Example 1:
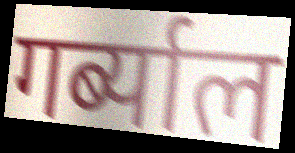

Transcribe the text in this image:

गर्ब्याल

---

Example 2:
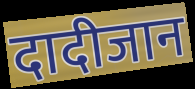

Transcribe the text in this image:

दादीजान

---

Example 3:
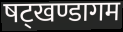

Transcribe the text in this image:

षट्खण्डागम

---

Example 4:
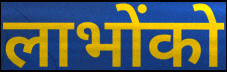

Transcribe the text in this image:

लाभोंको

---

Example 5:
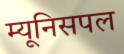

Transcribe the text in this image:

म्यूनिसपल